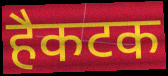
हैकटक